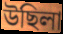
উছিলা